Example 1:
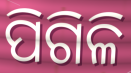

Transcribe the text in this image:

ପିଗିଳି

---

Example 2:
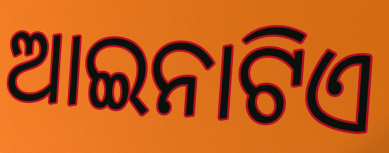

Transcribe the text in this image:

ଆଇନାଟିଏ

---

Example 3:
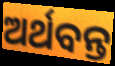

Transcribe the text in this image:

ଅର୍ଥବନ୍ତ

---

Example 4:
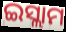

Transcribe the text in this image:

ଇସ୍ଲାମ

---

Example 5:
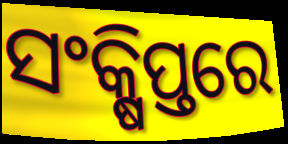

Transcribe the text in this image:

ସଂକ୍ଷିପ୍ତରେ